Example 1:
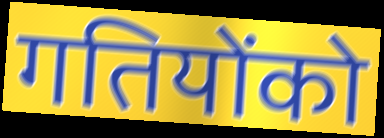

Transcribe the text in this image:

गतियोंको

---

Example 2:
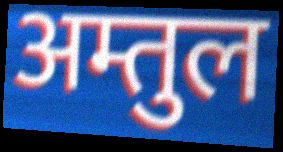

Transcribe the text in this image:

अम्तुल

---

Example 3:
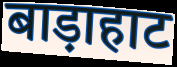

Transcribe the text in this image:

बाड़ाहाट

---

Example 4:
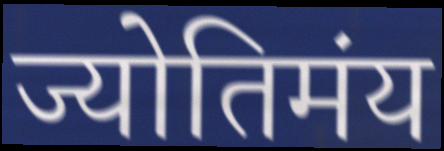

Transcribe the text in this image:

ज्योतिमंय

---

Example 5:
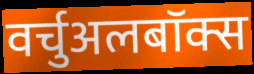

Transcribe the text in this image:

वर्चुअलबॉक्स